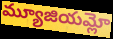
మ్యూజియమ్లో